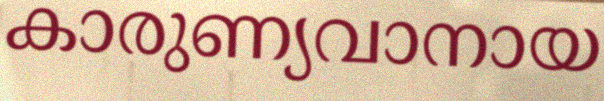
കാരുണ്യവാനായ